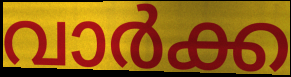
വാർക്ക